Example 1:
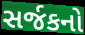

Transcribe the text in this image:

સર્જકનો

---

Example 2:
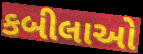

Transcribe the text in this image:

કબીલાઓ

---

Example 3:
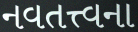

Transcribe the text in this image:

નવતત્ત્વના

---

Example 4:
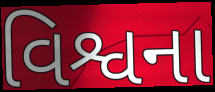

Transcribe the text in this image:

વિશ્વના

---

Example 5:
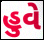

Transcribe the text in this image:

હુવે